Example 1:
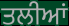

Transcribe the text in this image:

ਤਲੀਆਂ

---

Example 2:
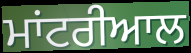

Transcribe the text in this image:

ਮਾਂਟਰੀਆਲ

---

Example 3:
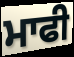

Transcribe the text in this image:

ਮਾਫੀ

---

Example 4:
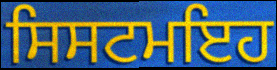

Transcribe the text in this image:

ਸਿਸਟਮਇਹ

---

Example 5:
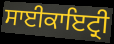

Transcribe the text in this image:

ਸਾਈਕਾਇਟ੍ਰੀ